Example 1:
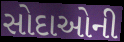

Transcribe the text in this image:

સોદાઓની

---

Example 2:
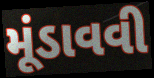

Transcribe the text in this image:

મૂંડાવવી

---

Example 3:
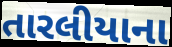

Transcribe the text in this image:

તારલીયાના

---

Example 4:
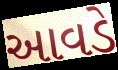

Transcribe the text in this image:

આવડે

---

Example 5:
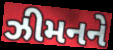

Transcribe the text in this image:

ઝીમનને